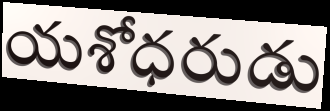
యశోధరుడు